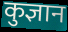
कुज्ञान